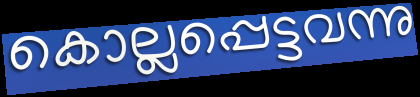
കൊല്ലപ്പെട്ടവന്നു